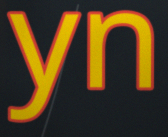
yn